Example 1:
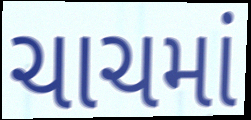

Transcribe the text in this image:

ચાચમાં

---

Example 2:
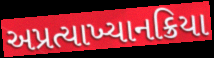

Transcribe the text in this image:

અપ્રત્યાખ્યાનક્રિયા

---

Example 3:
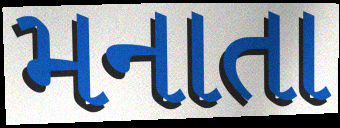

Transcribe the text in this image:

મનાતા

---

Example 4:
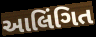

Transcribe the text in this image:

આલિંગિત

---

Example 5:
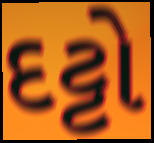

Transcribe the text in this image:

દટ્ટો